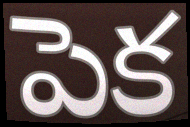
పెక